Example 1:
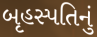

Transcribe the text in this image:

બૃહસ્પતિનું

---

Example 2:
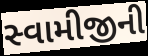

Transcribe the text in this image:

સ્વામીજીની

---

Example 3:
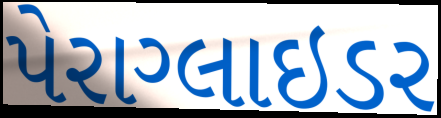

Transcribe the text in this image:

પેરાગ્લાઇડર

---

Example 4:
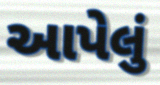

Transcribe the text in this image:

આપેલું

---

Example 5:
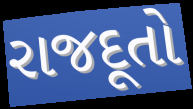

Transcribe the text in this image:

રાજદૂતો